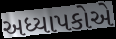
અધ્યાપકોએ